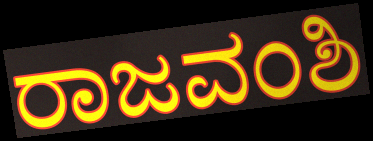
ರಾಜವಂಶಿ